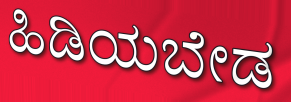
ಹಿಡಿಯಬೇಡ